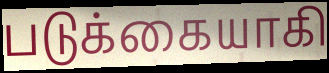
படுக்கையாகி